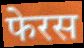
फेरस